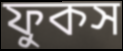
ফুকস